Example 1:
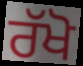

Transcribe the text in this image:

ਰੱਖੋ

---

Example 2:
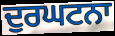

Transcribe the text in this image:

ਦੁਰਘਟਨਾ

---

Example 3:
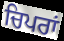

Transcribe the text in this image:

ਚਿਪਰਾਂ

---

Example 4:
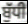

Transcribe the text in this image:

ਬੁੱਧੀ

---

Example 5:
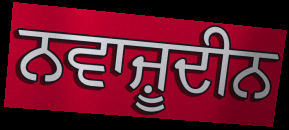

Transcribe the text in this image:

ਨਵਾਜ਼ੂਦੀਨ